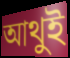
আথুই